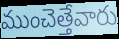
ముంచెత్తేవారు